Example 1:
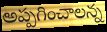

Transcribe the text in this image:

అప్పగించాలన్న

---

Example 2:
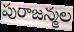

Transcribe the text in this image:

పురాజన్మల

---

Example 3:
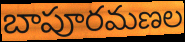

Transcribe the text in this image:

బాపూరమణల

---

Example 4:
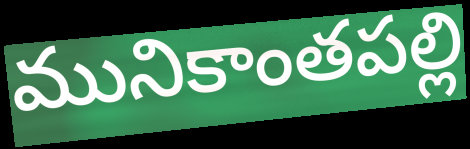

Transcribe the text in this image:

మునికాంతపల్లి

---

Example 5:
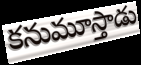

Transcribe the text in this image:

కనుమూస్తాడు